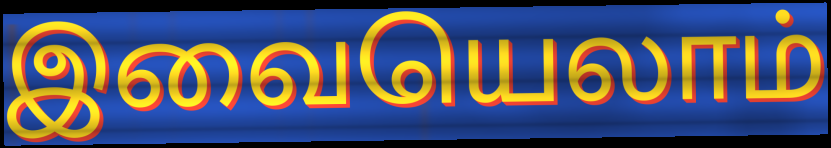
இவையெலாம்